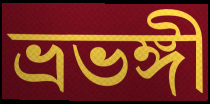
ভ্রভঙ্গী